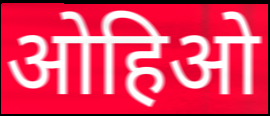
ओहिओ